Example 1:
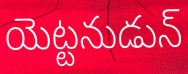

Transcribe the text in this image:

యెట్టనుడున్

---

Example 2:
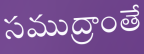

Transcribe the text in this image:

సముద్రాంతే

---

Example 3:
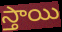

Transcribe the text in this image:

స్తాయి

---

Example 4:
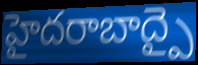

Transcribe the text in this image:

హైదరాబాద్పై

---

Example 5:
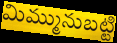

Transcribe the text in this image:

మిమ్మునుబట్టి